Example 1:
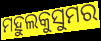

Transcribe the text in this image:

ମହୁଲକୁସୁମର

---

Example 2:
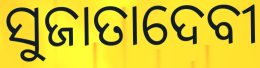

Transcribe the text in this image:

ସୁଜାତାଦେବୀ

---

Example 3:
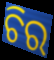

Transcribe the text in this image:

ଚିର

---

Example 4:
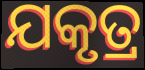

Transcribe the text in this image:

ଯକୃତ୍ର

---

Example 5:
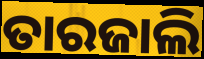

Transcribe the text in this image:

ତାରଜାଲି